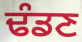
ਢੰਡਣ